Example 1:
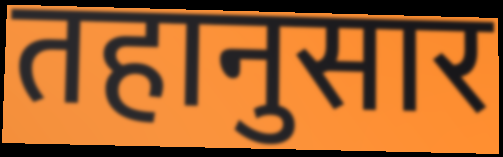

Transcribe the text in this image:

तहानुसार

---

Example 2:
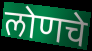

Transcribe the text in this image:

लोणचे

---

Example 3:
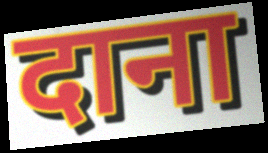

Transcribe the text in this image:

दाना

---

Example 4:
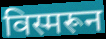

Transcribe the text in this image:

विस्मरून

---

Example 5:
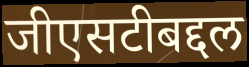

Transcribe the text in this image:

जीएसटीबद्दल